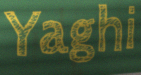
Yaghi